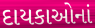
દાયકાઓનાં